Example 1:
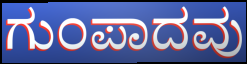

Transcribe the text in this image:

ಗುಂಪಾದವು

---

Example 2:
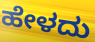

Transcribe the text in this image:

ಹೇಳದು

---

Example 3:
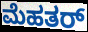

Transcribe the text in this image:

ಮೆಹತರ್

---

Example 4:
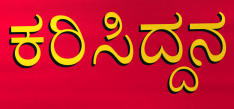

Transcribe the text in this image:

ಕರಿಸಿದ್ದನ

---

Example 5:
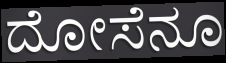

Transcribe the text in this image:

ದೋಸೆನೂ